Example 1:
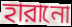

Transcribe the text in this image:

হারানো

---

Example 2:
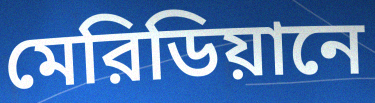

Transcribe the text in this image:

মেরিডিয়ানে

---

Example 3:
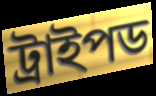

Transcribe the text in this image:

ট্রাইপড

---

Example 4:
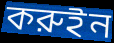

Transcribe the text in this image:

করুইন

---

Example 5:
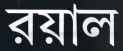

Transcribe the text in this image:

রয়াল